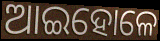
ଆଇହୋଳେ